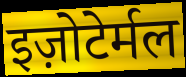
इज़ोटेर्मल